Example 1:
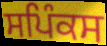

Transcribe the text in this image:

ਸਪਿੰਕਸ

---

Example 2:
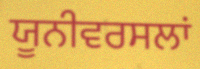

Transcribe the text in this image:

ਯੂਨੀਵਰਸਲਾਂ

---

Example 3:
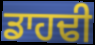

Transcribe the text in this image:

ਡਾਹਢੀ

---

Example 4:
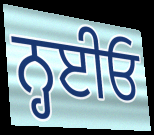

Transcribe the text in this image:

ਨ੍ਹਈਓ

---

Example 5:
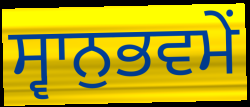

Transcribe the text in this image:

ਸ੍ਵਾਨੁਭਵਮੇਂ